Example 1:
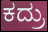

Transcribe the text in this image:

ಕದ್ರು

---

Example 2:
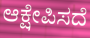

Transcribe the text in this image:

ಆಕ್ಷೇಪಿಸದೆ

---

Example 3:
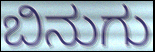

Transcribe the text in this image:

ಬಿನುಗು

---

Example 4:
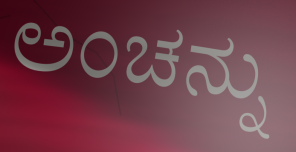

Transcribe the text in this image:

ಅಂಚನ್ನು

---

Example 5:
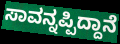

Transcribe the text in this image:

ಸಾವನ್ನಪ್ಪಿದ್ದಾನೆ